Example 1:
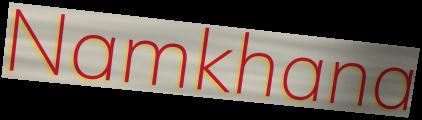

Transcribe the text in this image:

Namkhana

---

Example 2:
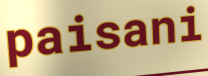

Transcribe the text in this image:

paisani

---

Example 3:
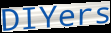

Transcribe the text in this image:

DIYers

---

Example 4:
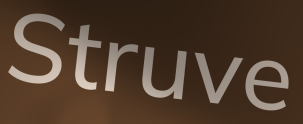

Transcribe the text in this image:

Struve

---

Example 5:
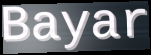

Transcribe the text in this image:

Bayar